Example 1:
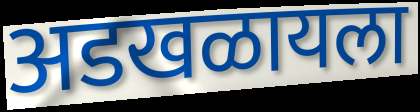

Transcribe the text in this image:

अडखळायला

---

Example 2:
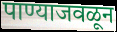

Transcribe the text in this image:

पाण्याजवळून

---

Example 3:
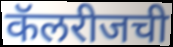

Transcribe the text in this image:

कॅलरीजची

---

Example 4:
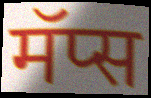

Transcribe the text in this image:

मॅप्स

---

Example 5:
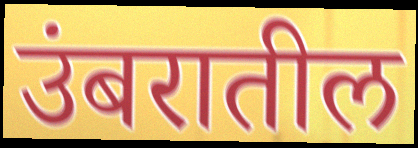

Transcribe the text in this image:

उंबरातील